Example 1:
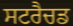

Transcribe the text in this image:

ਸਟਰੈਚਡ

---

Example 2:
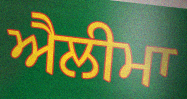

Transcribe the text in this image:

ਐਲੀਮਾ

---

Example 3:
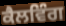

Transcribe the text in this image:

ਕੈਲਵਿੰਗ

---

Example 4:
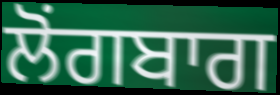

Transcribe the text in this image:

ਲੋਂਗਬਾਗ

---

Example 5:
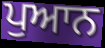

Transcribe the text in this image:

ਪੁਆਨ